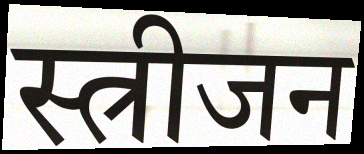
स्त्रीजन